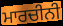
ਮਾਰਚੀਨੀ